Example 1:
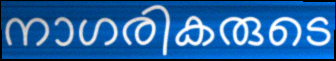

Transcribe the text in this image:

നാഗരികരുടെ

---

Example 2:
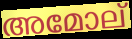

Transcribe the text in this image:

അമോല്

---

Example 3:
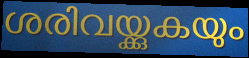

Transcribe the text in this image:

ശരിവയ്ക്കുകയും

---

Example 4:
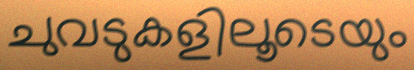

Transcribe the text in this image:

ചുവടുകളിലൂടെയും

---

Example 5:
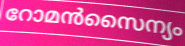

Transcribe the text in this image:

റോമൻസൈന്യം